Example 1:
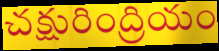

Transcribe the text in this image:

చక్షురింద్రియం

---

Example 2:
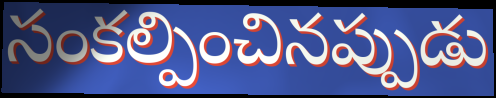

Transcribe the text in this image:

సంకల్పించినప్పుడు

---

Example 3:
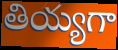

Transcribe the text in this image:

తియ్యగా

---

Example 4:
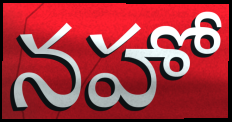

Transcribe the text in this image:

నహో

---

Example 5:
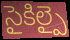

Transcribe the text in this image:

సైకిల్పై